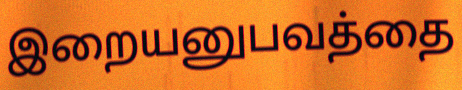
இறையனுபவத்தை